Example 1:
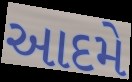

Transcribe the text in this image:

આદમે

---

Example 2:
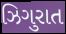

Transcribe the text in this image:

ઝિગુરાત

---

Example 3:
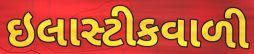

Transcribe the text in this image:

ઇલાસ્ટીકવાળી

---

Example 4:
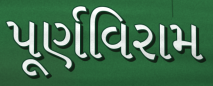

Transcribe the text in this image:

પૂર્ણવિરામ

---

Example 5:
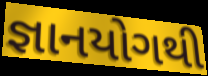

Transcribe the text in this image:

જ્ઞાનયોગથી